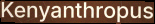
Kenyanthropus